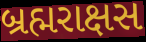
બ્રહ્મરાક્ષસ